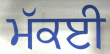
ਮੱਕਈ